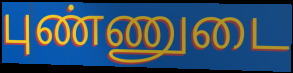
புண்ணுடை